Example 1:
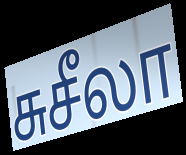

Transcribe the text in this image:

சுசீலா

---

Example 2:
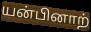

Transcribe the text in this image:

யன்பினாற்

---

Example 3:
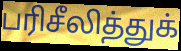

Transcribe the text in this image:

பரிசீலித்துக்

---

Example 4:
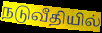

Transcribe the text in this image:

நடுவீதியில்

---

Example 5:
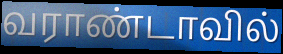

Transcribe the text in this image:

வராண்டாவில்